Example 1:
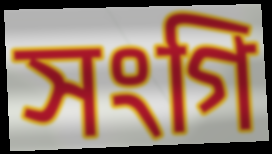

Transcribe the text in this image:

সংগি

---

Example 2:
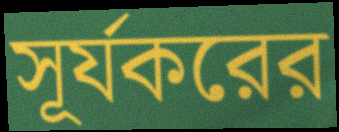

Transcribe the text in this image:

সূর্যকরের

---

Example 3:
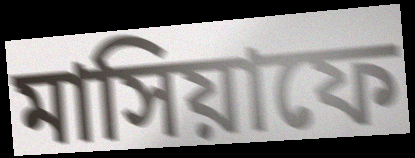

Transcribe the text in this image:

মাসিয়াফে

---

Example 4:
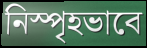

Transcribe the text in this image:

নিস্পৃহভাবে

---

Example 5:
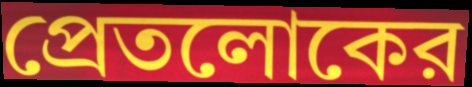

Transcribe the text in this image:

প্রেতলোকের